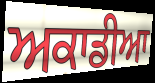
ਅਕਾਡੀਆ